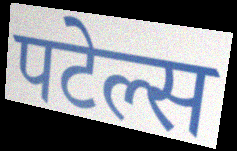
पटेल्स